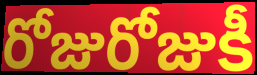
రోజురోజుకీ